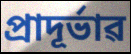
প্ৰাদূৰ্ভাৱ